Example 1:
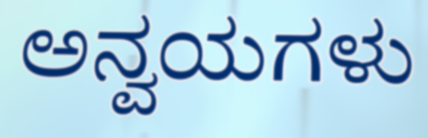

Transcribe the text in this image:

ಅನ್ವಯಗಳು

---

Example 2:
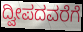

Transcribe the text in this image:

ದ್ವೀಪದವರೆಗೆ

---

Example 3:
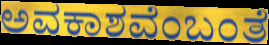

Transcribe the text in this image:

ಅವಕಾಶವೆಂಬಂತೆ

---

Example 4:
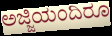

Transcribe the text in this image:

ಅಜ್ಜಿಯಂದಿರೂ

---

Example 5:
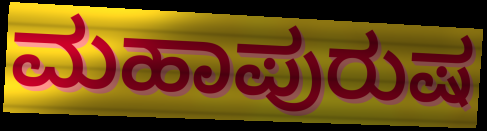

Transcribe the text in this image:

ಮಹಾಪುರುಷ